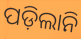
ପଡ଼ିଲାନି